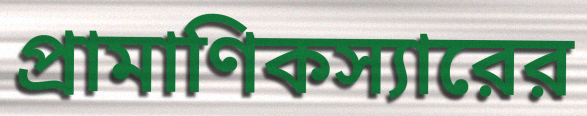
প্রামাণিকস্যারের